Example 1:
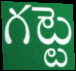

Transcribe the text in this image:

గట్టె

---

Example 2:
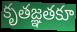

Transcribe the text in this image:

కృతజ్ఞతకూ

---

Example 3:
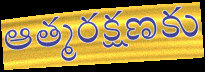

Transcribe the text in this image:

ఆత్మరక్షణకు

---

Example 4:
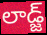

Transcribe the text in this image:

లాడ్జ్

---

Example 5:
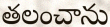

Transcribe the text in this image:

తలంచాను